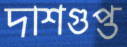
দাশগুপ্ত